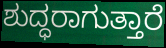
ಶುದ್ಧರಾಗುತ್ತಾರೆ